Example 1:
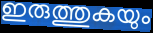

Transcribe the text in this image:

ഇരുത്തുകയും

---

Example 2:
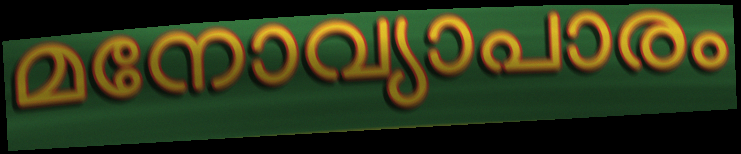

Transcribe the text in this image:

മനോവ്യാപാരം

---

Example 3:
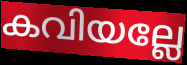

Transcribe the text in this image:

കവിയല്ലേ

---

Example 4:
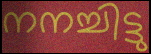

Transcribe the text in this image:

നനച്ചിട്ടു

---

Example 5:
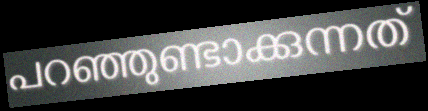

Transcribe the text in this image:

പറഞ്ഞുണ്ടാക്കുന്നത്